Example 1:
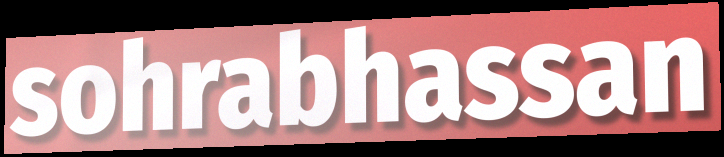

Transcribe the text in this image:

sohrabhassan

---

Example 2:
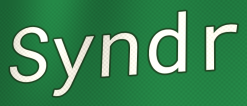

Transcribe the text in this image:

Syndr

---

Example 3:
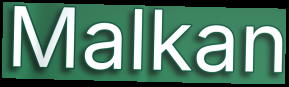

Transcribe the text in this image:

Malkan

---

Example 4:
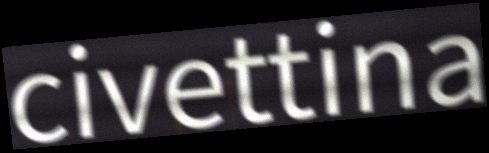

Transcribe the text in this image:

civettina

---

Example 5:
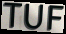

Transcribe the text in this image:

TUF